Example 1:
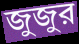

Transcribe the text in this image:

জুজুর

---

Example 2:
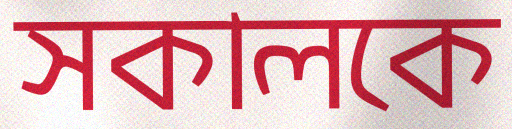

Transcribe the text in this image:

সকালকে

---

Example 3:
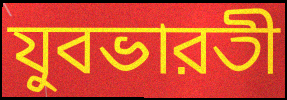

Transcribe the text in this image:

যুবভারতী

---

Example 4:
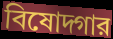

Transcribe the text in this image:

বিষোদ্গার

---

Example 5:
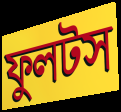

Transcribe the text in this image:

ফুলটস